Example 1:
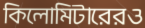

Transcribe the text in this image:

কিলোমিটারেরও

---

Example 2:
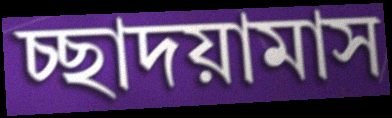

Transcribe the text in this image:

চ্ছাদয়ামাস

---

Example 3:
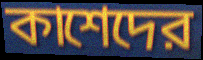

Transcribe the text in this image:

কাশেদের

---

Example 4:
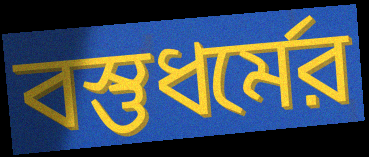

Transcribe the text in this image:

বস্তুধর্মের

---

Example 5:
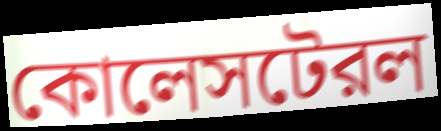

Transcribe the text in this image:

কোলেসটেরল